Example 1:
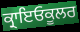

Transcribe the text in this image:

ਕ੍ਰਾਇਓਕੂਲਰ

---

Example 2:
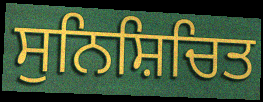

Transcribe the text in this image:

ਸੁਨਿਸ਼ਿਚਿਤ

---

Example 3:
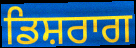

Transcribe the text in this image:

ਡਿਸ਼ਰਾਗ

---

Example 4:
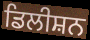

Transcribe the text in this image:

ਡਿਲੀਸ਼ਨ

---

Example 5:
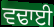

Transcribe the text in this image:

ਵਢਾਈ